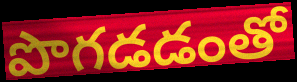
పొగడడంతో